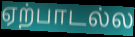
ஏற்பாடல்ல